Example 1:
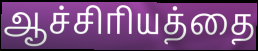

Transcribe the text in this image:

ஆச்சிரியத்தை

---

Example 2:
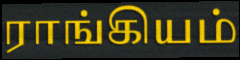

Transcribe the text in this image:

ராங்கியம்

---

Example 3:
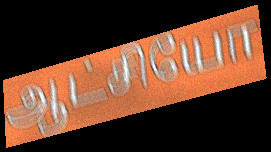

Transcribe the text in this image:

ஆட்சியோ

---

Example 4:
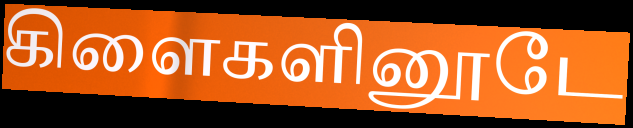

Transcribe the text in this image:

கிளைகளினூடே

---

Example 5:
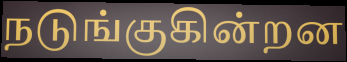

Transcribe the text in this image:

நடுங்குகின்றன